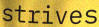
strives